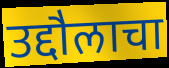
उद्दौलाचा